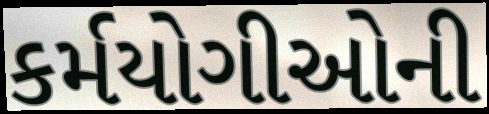
કર્મયોગીઓની